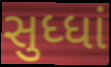
સુધ્ધાં